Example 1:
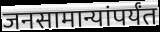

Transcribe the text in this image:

जनसामान्यांपर्यंत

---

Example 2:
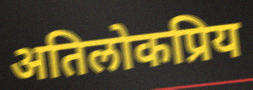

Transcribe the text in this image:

अतिलोकप्रिय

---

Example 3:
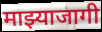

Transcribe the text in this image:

माझ्याजागी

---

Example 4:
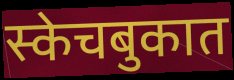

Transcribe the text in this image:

स्केचबुकात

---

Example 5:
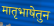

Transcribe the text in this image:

मातृभाषेतुन